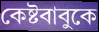
কেষ্টবাবুকে